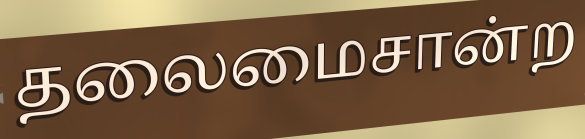
தலைமைசான்ற